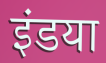
इंडया